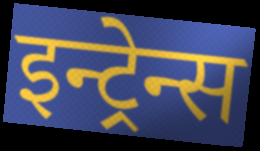
इन्ट्रेन्स